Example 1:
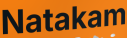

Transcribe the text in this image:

Natakam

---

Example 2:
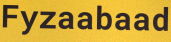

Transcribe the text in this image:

Fyzaabaad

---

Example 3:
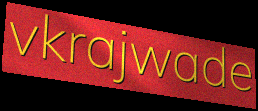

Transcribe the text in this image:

vkrajwade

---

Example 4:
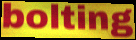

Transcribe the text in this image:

bolting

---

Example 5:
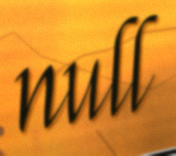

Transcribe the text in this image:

null